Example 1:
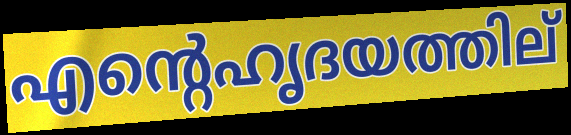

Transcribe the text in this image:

എന്റെഹൃദയത്തില്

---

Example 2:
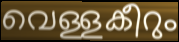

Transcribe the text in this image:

വെള്ളകീറും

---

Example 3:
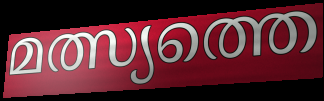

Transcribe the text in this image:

മത്സ്യത്തെ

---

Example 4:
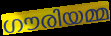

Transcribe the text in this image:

ഗൗരിയമ്മ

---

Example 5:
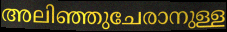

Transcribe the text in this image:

അലിഞ്ഞുചേരാനുള്ള